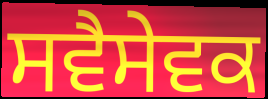
ਸਵੈਸੇਵਕ